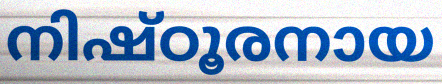
നിഷ്ഠൂരനായ